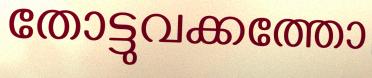
തോട്ടുവക്കത്തോ